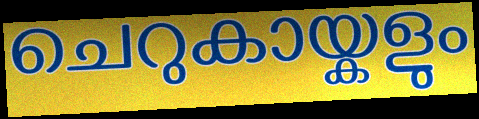
ചെറുകായ്കളും